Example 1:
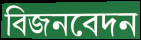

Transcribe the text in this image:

বিজনবেদন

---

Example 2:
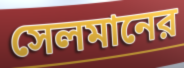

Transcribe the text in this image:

সেলমানের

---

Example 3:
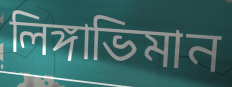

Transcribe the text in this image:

লিঙ্গাভিমান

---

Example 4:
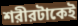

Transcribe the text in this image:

শরীরটাকেই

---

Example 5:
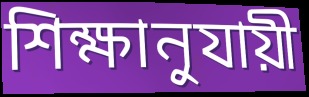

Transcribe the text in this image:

শিক্ষানুযায়ী